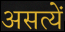
असत्यें